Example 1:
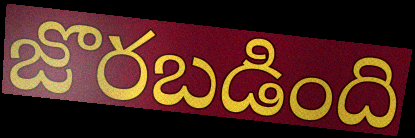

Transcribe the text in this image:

జొరబడింది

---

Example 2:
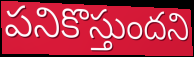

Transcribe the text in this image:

పనికొస్తుందని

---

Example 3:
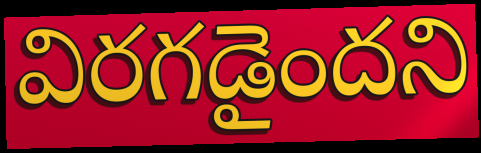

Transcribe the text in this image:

విరగడైందని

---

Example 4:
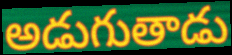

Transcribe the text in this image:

అడుగుతాడు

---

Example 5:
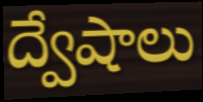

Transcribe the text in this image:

ద్వేషాలు